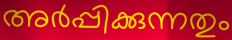
അർപ്പിക്കുന്നതും